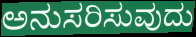
ಅನುಸರಿಸುವುದು